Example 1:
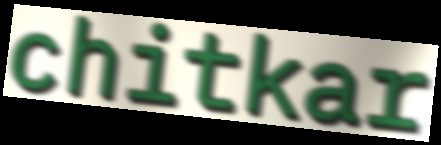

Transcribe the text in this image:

chitkar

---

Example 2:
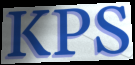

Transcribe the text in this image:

KPS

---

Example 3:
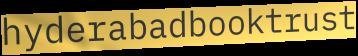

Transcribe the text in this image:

hyderabadbooktrust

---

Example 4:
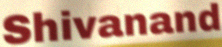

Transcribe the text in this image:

Shivanand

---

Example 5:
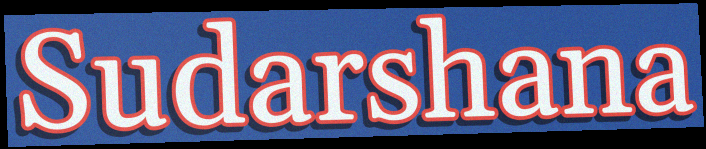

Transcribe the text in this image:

Sudarshana